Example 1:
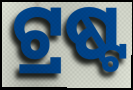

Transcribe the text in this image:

ଟ୍ରଷ୍ଟ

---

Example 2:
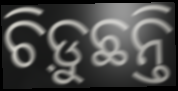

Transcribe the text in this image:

ଚିଡ଼ୁଛନ୍ତି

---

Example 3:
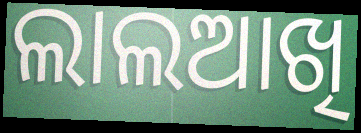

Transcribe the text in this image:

ଲାଲଆଖି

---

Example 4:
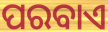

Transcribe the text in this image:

ପରବାଏ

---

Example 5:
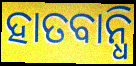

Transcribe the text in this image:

ହାତବାନ୍ଧି